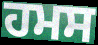
ਹਮਸ